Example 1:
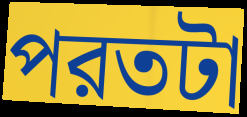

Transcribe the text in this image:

পরতটা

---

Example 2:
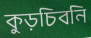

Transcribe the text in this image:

কুড়চিবনি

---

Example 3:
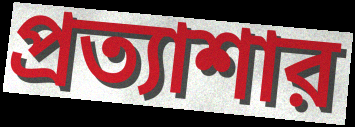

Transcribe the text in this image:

প্রত্যাশার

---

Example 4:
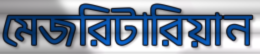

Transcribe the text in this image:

মেজরিটারিয়ান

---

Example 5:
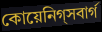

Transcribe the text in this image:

কোয়েনিগ্সবার্গ